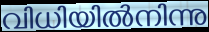
വിധിയിൽനിന്നു